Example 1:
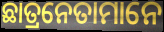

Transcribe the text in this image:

ଛାତ୍ରନେତାମାନେ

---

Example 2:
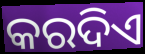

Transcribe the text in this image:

କରଦିଏ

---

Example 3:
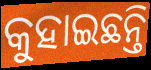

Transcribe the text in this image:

କୁହାଇଛନ୍ତି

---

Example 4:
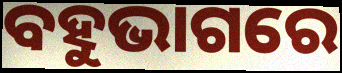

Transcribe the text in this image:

ବହୁଭାଗରେ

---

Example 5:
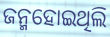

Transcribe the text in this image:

ଜନ୍ମହୋଇଥିଲି